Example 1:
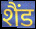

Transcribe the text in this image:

शैंड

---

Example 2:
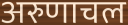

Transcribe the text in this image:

अरुणाचल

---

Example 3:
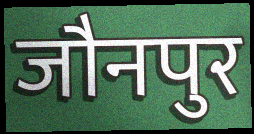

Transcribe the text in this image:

जौनपुर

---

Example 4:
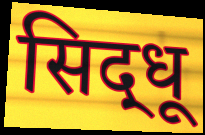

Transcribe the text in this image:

सिद्धू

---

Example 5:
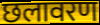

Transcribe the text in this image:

छलावरण